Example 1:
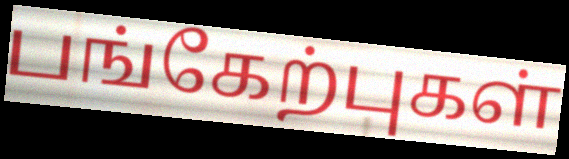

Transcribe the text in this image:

பங்கேற்புகள்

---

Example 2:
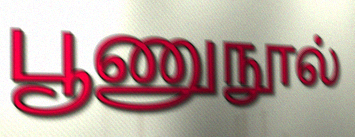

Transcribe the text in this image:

பூணுநூல்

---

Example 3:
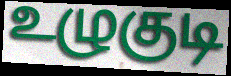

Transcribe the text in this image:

உழுகுடி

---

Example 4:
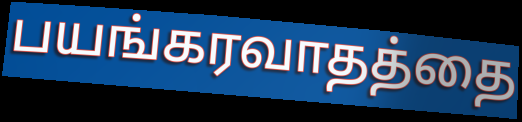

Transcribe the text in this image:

பயங்கரவாதத்தை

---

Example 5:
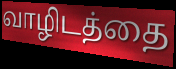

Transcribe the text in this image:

வாழிடத்தை